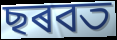
ছৰবত